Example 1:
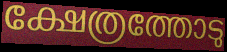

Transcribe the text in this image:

ക്ഷേത്രത്തോടു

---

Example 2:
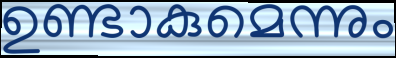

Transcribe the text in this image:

ഉണ്ടാകുമെന്നും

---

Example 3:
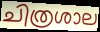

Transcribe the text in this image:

ചിത്രശാല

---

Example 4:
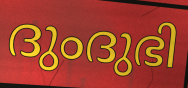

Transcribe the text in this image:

ദുംദുഭി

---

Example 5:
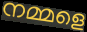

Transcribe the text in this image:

നമ്മളെ